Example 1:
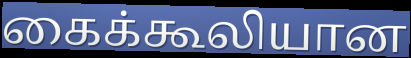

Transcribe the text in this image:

கைக்கூலியான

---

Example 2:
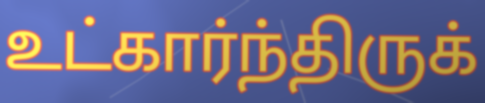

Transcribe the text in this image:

உட்கார்ந்திருக்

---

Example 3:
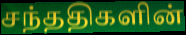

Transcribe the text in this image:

சந்ததிகளின்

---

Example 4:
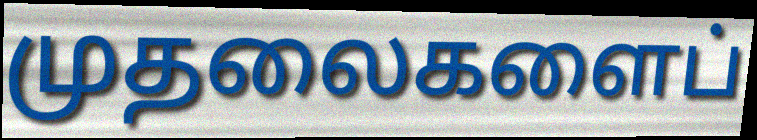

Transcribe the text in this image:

முதலைகளைப்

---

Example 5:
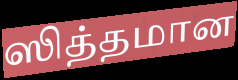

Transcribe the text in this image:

ஸித்தமான